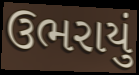
ઉભરાયું